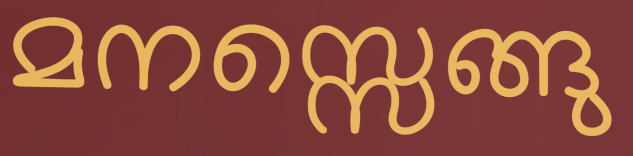
മനസ്സെങ്ങു